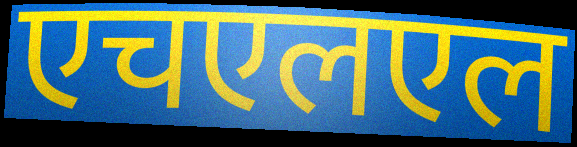
एचएलएल